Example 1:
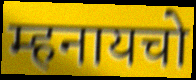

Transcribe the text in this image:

म्हनायचो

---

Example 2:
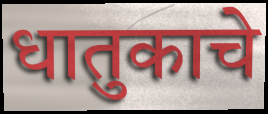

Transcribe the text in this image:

धातुकाचे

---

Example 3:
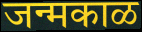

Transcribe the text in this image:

जन्मकाळ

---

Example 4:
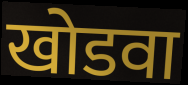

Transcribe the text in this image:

खोडवा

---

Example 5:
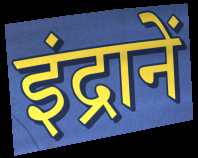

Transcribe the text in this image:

इंद्रानें